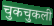
चुकचुकली